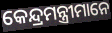
କେନ୍ଦ୍ରମନ୍ତ୍ରୀମାନେ